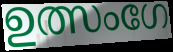
ഉത്സംഗേ